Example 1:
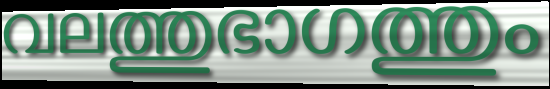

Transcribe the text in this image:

വലത്തുഭാഗത്തും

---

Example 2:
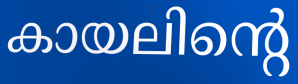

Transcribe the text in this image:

കായലിന്റെ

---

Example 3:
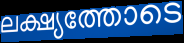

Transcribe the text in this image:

ലക്ഷ്യത്തോടെ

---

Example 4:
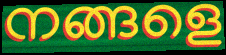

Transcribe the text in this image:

നങ്ങളെ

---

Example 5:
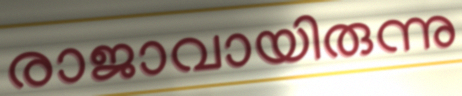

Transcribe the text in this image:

രാജാവായിരുന്നു